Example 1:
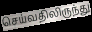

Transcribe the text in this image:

செய்வதிலிருந்து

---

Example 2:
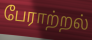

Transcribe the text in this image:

பேராற்றல்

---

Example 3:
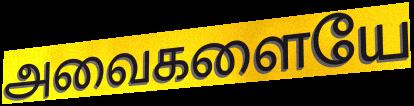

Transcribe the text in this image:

அவைகளையே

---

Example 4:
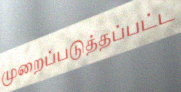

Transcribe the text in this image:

முறைப்படுத்தப்பட்ட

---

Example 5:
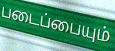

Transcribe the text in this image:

படைப்பையும்